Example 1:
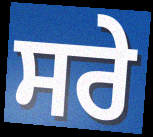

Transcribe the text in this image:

ਸਰੇ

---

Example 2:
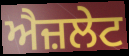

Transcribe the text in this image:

ਐਜ਼ਲੇਟ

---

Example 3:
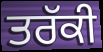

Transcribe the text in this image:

ਤਰੱਕੀ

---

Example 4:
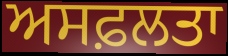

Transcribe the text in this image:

ਅਸਫ਼ਲਤਾ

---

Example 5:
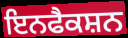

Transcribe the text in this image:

ਇਨਫੈਕਸ਼ਨ